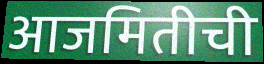
आजमितीची